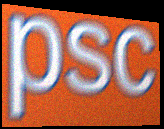
psc